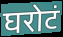
घरोटं